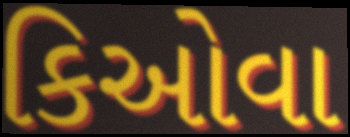
કિઓવા